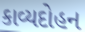
કાવ્યદોહન